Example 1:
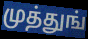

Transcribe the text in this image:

முத்துங்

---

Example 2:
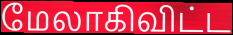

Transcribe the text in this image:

மேலாகிவிட்ட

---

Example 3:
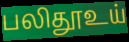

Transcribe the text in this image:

பலிதூஉய்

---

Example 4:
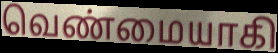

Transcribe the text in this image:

வெண்மையாகி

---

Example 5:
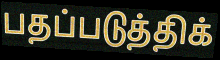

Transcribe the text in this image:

பதப்படுத்திக்